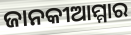
ଜାନକୀଆମ୍ମାର